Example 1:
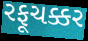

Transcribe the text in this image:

રફૂચક્કર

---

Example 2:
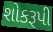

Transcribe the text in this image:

શોકરૂપી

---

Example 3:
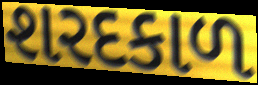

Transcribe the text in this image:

શરદકાળ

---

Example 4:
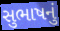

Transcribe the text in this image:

સુભાષનું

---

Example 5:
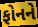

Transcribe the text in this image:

ફોનને